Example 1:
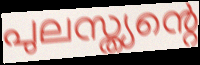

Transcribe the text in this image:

പുലസ്ത്യന്റെ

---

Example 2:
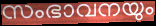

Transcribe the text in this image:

സംഭാവനയും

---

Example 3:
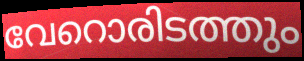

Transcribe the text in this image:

വേറൊരിടത്തും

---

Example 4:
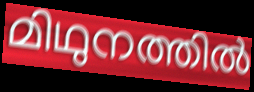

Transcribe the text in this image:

മിഥുനത്തിൽ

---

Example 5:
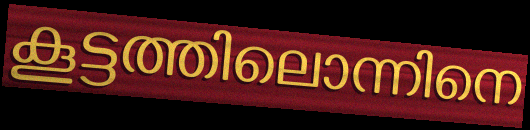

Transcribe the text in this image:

കൂട്ടത്തിലൊന്നിനെ